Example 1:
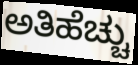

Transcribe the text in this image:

ಅತಿಹೆಚ್ಚು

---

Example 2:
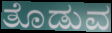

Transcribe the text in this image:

ತೊಡುವ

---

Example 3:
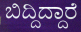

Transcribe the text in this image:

ಬಿದ್ದಿದ್ದಾರೆ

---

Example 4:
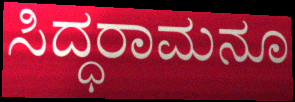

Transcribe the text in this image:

ಸಿದ್ಧರಾಮನೂ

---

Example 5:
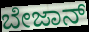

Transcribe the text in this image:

ಬೇಜಾನ್